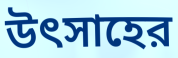
উৎসাহের